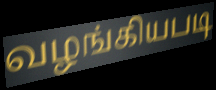
வழங்கியபடி